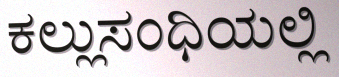
ಕಲ್ಲುಸಂಧಿಯಲ್ಲಿ